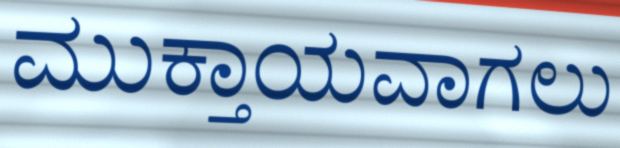
ಮುಕ್ತಾಯವಾಗಲು